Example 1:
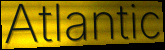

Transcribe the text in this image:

Atlantic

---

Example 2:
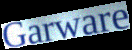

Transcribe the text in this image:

Garware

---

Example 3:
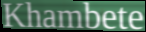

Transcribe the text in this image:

Khambete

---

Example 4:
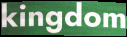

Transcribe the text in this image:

kingdom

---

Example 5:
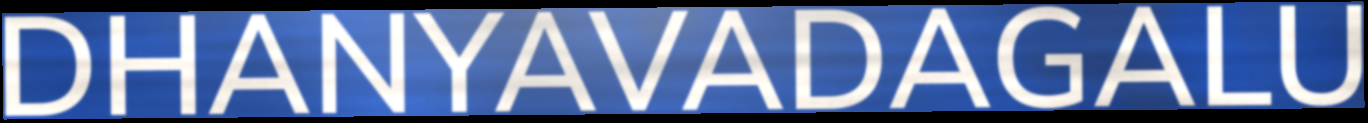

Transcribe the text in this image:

DHANYAVADAGALU